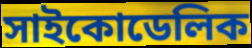
সাইকোডেলিক